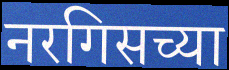
नरगिसच्या